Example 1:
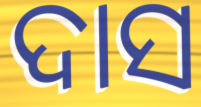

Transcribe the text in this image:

ଦାସ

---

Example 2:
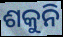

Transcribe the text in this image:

ଶକୁନି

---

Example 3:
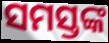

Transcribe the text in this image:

ସମସ୍ତଙ୍କ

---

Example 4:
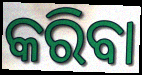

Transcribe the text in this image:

କରିବା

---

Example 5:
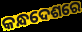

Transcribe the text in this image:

କନ୍ଧଦେଶରେ